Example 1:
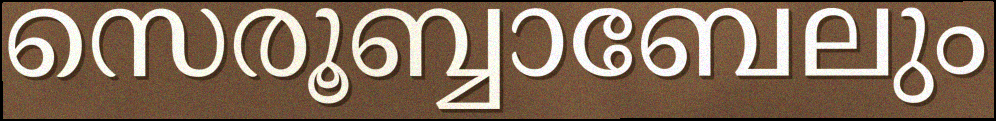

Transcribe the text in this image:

സെരൂബ്ബാബേലും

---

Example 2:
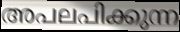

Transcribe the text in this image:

അപലപിക്കുന്ന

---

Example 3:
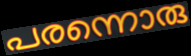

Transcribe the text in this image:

പരന്നൊരു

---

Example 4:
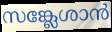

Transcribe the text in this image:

സങ്ക്ലേശാൻ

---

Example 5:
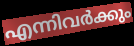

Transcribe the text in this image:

എന്നിവർക്കും